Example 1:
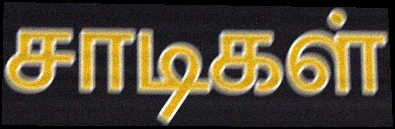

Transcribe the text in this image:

சாடிகள்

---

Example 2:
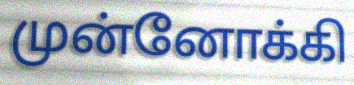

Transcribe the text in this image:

முன்னோக்கி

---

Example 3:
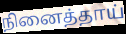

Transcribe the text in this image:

நினைத்தாய்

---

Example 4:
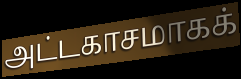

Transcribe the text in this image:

அட்டகாசமாகக்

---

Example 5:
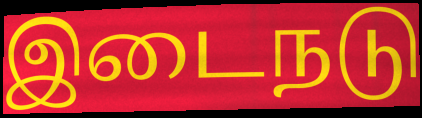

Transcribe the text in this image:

இடைநடு